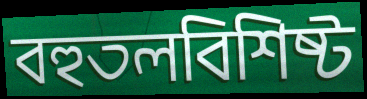
বহুতলবিশিষ্ট